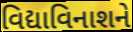
વિદ્યાવિનાશને